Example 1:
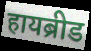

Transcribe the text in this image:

हायब्रीड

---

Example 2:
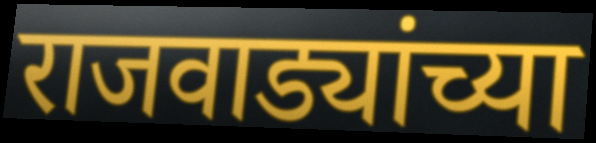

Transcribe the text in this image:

राजवाड्यांच्या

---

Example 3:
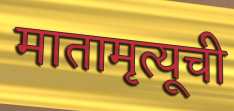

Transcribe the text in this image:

मातामृत्यूची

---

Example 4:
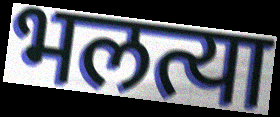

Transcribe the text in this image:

भलत्या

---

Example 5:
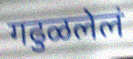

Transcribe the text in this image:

गढुळलेलं